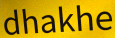
dhakhe